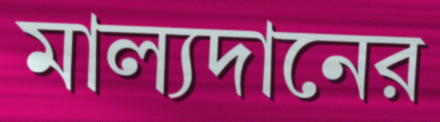
মাল্যদানের